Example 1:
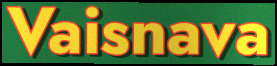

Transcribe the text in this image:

Vaisnava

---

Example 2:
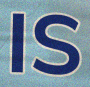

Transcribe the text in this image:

IS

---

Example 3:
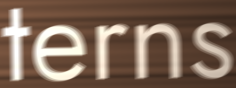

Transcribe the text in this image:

terns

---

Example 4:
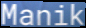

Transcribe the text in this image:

Manik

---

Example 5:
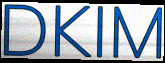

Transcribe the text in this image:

DKIM